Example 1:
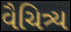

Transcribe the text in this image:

વૈચિત્ર્ય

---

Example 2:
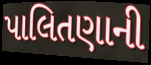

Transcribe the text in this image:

પાલિતણાની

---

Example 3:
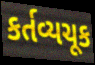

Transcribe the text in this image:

કર્તવ્યચૂક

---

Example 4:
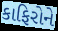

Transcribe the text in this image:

કાફિરોને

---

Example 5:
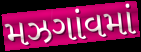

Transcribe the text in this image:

મઝગાંવમાં